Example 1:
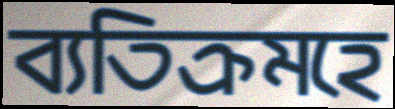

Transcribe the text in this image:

ব্যতিক্ৰমহে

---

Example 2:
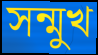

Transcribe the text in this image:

সন্মুখ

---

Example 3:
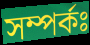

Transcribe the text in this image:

সম্পৰ্কঃ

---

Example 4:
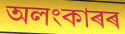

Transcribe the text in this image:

অলংকাৰৰ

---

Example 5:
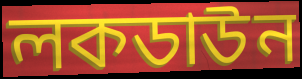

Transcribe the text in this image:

লকডাউন